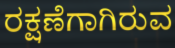
ರಕ್ಷಣೆಗಾಗಿರುವ